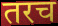
तरच